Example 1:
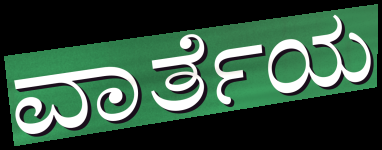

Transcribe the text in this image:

ವಾರ್ತೆಯ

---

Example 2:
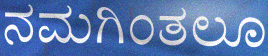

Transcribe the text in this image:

ನಮಗಿಂತಲೂ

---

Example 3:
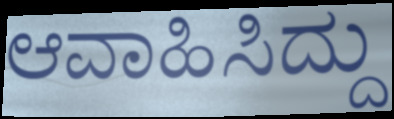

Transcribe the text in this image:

ಆವಾಹಿಸಿದ್ದು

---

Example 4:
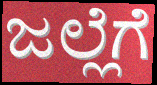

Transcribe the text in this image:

ಜಲ್ಲೆಗೆ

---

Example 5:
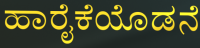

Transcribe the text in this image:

ಹಾರೈಕೆಯೊಡನೆ